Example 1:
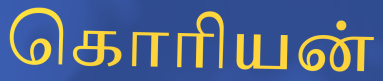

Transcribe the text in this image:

கொரியன்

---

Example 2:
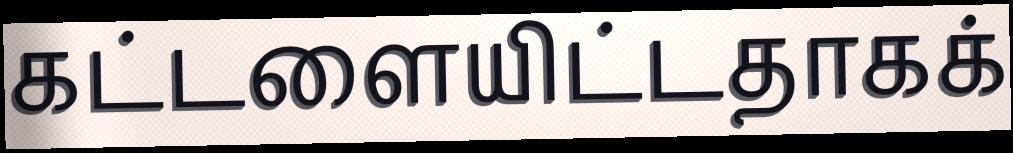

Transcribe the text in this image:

கட்டளையிட்டதாகக்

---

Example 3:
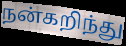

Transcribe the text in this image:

நன்கறிந்து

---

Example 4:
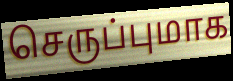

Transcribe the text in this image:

செருப்புமாக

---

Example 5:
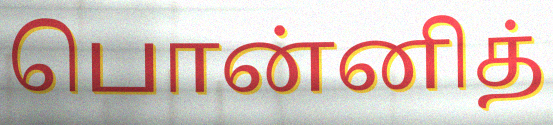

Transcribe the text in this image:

பொன்னித்